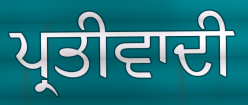
ਪ੍ਰਤੀਵਾਦੀ